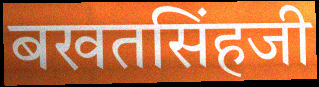
बखतसिंहजी